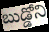
బుడ్డోని